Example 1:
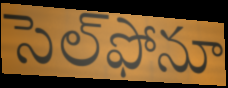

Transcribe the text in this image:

సెల్‌ఫోనూ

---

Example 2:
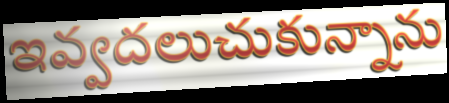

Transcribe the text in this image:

ఇవ్వదలుచుకున్నాను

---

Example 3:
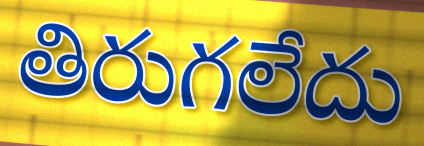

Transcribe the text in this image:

తిరుగలేదు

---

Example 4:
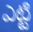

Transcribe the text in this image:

ఎట్టి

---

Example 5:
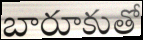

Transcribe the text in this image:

బారూకుతో